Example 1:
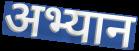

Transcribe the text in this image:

अभ्यान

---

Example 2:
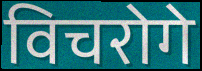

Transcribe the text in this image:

विचरोगे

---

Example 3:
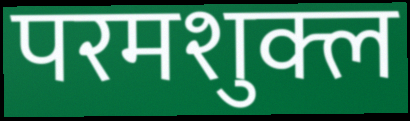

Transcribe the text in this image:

परमशुक्ल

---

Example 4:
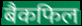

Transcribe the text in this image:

बैकफिल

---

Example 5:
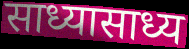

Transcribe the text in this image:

साध्यासाध्य